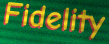
Fidelity